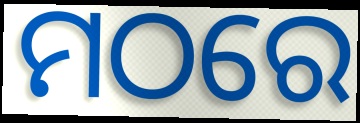
ମଠରେ